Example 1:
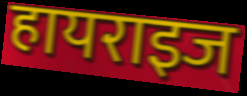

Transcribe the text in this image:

हायराइज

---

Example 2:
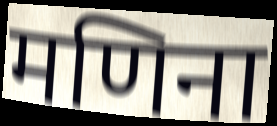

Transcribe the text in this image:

मणिना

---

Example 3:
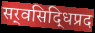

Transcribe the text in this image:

सर्वसिद्धिप्रद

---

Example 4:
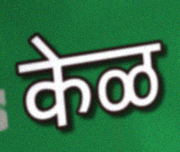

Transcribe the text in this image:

केळ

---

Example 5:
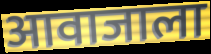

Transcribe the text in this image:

आवाजाला